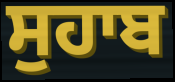
ਸੁਹਾਬ